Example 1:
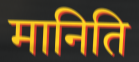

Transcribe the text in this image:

मानिति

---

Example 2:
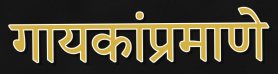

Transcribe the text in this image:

गायकांप्रमाणे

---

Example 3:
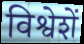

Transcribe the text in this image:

विश्वेशें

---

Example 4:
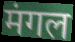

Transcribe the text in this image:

मंगल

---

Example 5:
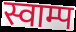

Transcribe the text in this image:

स्वाम्प